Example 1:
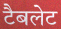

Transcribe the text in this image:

टैबलेट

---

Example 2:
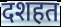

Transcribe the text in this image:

दशहत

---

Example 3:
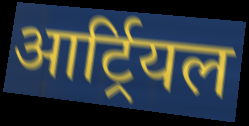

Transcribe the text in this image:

आर्ट्रियल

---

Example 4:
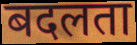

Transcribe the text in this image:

बदलता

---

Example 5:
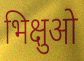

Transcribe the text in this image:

भिक्षुओ